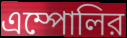
এম্পোলির